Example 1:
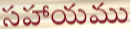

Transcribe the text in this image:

సహాయము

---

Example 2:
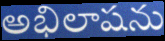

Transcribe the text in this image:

అభిలాషను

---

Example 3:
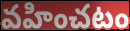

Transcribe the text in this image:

వహించటం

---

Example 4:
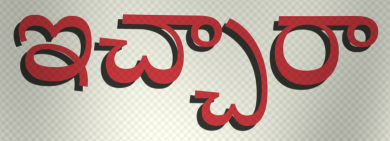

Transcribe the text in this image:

ఇచ్చారా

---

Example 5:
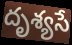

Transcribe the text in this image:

దృశ్యసే